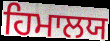
ਹਿਮਾਲਯ